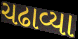
ચઢાવ્યા